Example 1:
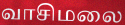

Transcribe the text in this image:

வாசிமலை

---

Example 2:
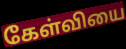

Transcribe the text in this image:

கேள்வியை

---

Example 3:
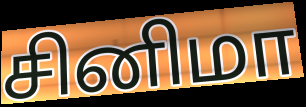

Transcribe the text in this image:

சினிமா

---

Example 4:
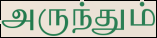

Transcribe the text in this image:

அருந்தும்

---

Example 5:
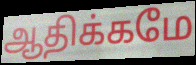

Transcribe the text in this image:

ஆதிக்கமே